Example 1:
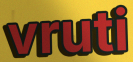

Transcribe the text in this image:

vruti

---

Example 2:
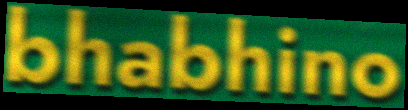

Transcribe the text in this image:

bhabhino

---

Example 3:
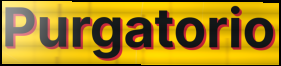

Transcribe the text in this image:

Purgatorio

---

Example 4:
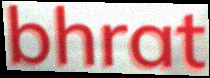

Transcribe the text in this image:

bhrat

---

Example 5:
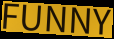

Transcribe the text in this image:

FUNNY